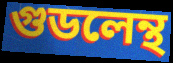
গুডলেন্থ